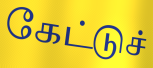
கேட்டுச்